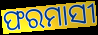
ଫରମାସୀ